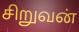
சிறுவன்